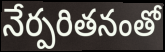
నేర్పరితనంతో